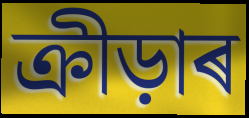
ক্ৰীড়াৰ